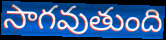
సాగవుతుంది